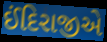
ઈંદિરાજીએ